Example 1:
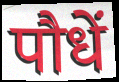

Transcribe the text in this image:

पौधें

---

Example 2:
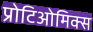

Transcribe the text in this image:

प्रोटिओमिक्स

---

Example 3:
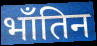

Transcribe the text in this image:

भाँतिन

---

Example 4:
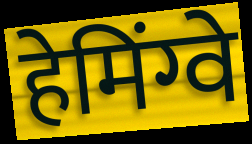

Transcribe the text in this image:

हेमिंग्वे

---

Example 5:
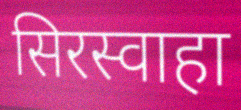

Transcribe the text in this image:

सिरस्वाहा